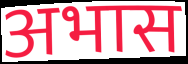
अभास